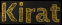
Kirat